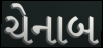
ચેનાબ